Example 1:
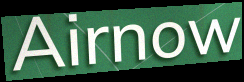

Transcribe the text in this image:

Airnow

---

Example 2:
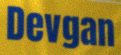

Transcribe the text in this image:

Devgan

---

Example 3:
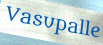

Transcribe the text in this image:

Vasupalle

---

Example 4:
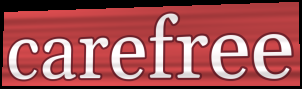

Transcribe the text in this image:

carefree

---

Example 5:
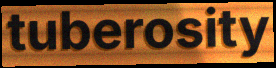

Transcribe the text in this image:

tuberosity